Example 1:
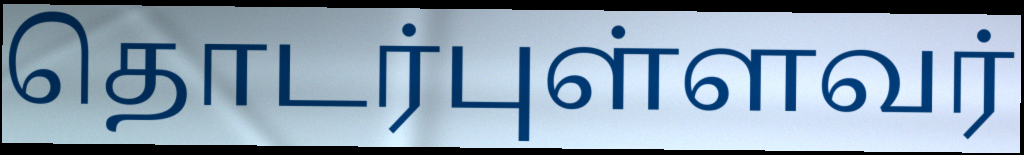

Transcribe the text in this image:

தொடர்புள்ளவர்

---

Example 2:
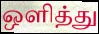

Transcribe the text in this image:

ஒளித்து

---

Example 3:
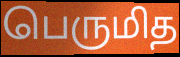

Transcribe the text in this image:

பெருமித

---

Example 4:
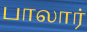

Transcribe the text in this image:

பாலார்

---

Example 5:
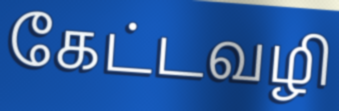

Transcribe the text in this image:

கேட்டவழி